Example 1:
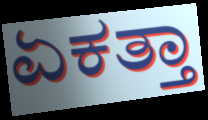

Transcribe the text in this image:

ಏಕತ್ತಾ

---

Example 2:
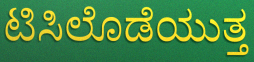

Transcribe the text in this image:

ಟಿಸಿಲೊಡೆಯುತ್ತ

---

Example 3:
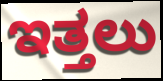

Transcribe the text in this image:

ಇತ್ತಲು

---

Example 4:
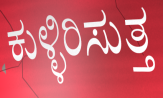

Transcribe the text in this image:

ಕುಳ್ಳಿರಿಸುತ್ತ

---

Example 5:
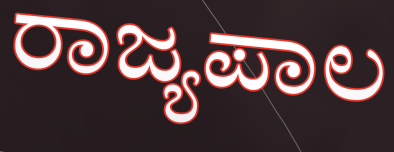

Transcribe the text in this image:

ರಾಜ್ಯಪಾಲ